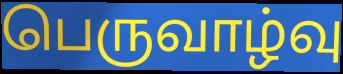
பெருவாழ்வு